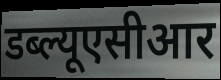
डब्ल्यूएसीआर